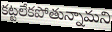
కట్టలేకపోతున్నామని